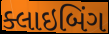
ક્લાઇબિંગ